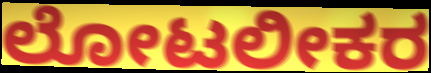
ಲೋಟಲೀಕರ